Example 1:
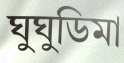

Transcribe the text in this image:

ঘুঘুডিমা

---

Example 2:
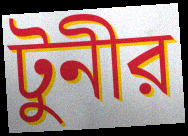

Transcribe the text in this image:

টুনীর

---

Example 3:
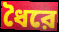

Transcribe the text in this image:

ধৈরে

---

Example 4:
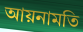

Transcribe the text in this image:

আয়নামতি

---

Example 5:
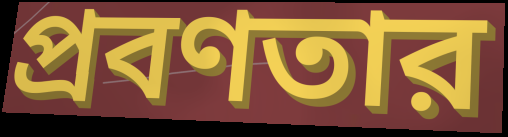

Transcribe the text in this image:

প্রবণতার